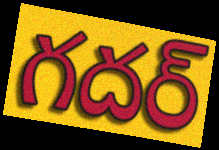
గదర్